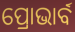
ପ୍ରୋଭାର୍ବ